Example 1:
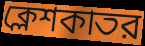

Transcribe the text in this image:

ক্লেশকাতর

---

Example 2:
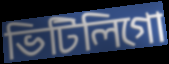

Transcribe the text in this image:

ভিটিলিগো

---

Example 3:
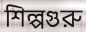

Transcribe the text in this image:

শিল্পগুরু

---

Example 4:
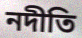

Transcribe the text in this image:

নদীতি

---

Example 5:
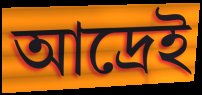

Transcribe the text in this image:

আদ্রেই